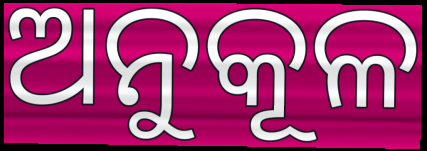
ଅନୁକୂଳ